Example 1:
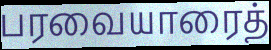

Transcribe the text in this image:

பரவையாரைத்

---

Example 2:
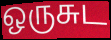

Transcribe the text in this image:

ஒருசுட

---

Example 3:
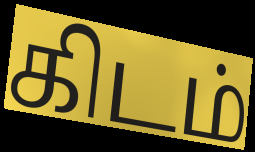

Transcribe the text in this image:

கிடம்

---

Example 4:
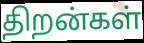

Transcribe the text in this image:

திறன்கள்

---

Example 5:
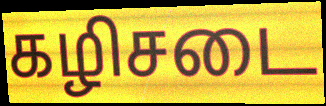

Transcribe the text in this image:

கழிசடை